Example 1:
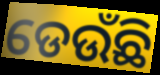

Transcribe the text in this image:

ଡେଉଁଛି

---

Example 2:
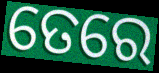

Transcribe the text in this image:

ତେରେ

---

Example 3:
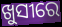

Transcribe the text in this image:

ଖୁସୀରେ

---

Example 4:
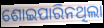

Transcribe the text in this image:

ଶୋଇପାରିନଥିଲା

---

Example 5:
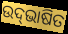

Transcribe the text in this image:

ଉଦ୍‍ଭାଷିତ